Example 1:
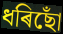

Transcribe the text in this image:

ধৰিছোঁ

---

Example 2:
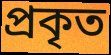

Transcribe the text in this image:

প্ৰকৃত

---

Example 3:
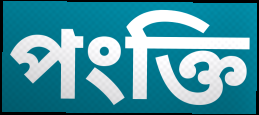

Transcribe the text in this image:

পংক্তি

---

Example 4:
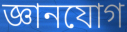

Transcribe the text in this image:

জ্ঞানযোগ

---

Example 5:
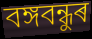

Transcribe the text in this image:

বঙ্গবন্ধুৰ